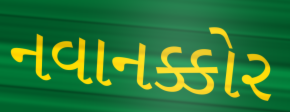
નવાનક્કોર